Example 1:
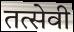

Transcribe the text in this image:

तत्सेवी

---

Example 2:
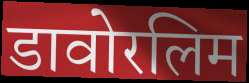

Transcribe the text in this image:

डावोरलिम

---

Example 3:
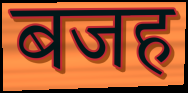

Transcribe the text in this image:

बजह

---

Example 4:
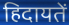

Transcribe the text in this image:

हिदायतें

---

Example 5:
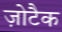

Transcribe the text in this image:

ज़ोटैक